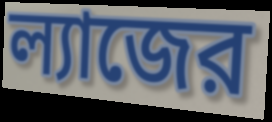
ল্যাজের